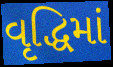
વૃદ્ધિમાં